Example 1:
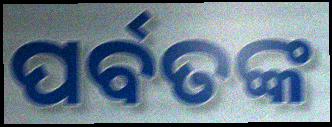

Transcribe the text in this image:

ପର୍ବତଙ୍କ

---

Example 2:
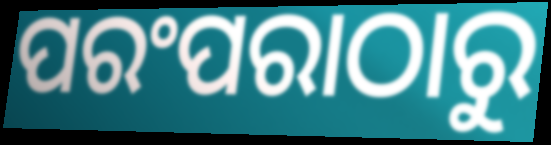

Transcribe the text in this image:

ପରଂପରାଠାରୁ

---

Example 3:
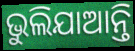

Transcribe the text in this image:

ଭୁଲିଯାଆନ୍ତି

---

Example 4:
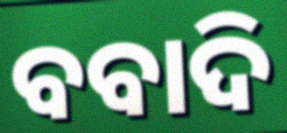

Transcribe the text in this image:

ବବାଦି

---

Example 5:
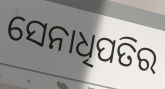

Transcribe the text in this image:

ସେନାଧିପତିର